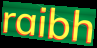
raibh